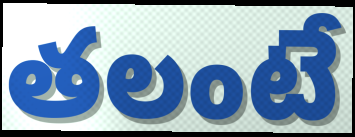
తలంటే